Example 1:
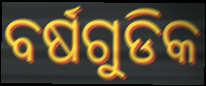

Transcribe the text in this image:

ବର୍ଷଗୁଡିକ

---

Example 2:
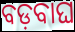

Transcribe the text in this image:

ବଡ଼ବାଘ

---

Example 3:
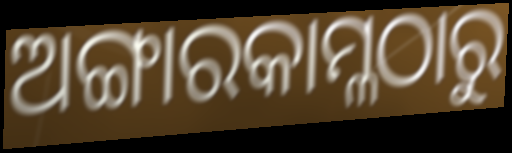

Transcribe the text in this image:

ଅଙ୍ଗାରକାମ୍ଳଠାରୁ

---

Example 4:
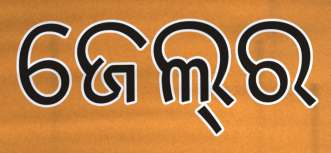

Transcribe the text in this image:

ଜେଲ୍‍ର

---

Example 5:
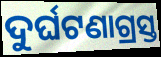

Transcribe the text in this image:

ଦୁର୍ଘଟଣାଗ୍ରସ୍ତ